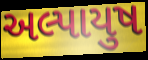
અલ્પાયુષ